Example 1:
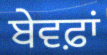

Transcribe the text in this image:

ਬੇਵਫ਼ਾਂ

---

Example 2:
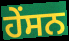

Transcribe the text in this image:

ਹੇਂਸਨ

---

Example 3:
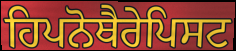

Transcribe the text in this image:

ਹਿਪਨੋਥੈਰੇਪਿਸਟ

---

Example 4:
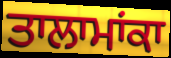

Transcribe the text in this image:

ਤਾਲਾਮਾਂਕਾ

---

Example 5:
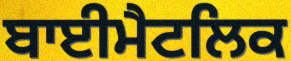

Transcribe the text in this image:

ਬਾਈਮੈਟਲਿਕ